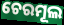
ଚେରମୂଲ